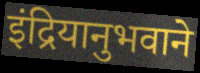
इंद्रियानुभवाने